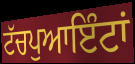
ਟੱਚਪੁਆਇੰਟਾਂ